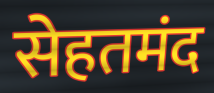
सेहतमंद